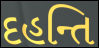
દહન્તિ